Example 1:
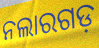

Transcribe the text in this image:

ନଲାରଗଡ଼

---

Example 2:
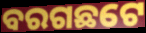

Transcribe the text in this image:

ବରଗଛଟେ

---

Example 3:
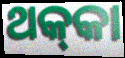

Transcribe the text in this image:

ଥକ୍‌କା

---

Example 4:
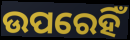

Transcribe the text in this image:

ଉପରେହିଁ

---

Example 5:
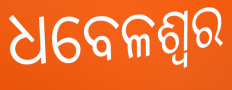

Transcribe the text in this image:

ଧବେଳଶ୍ୱର